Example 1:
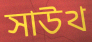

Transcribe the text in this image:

সাউথ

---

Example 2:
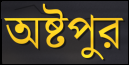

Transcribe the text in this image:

অষ্টপুর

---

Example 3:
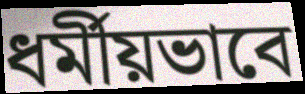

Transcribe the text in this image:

ধর্মীয়ভাবে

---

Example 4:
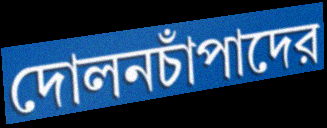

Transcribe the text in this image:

দোলনচাঁপাদের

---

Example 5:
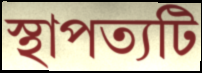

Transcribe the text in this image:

স্থাপত্যটি